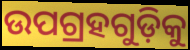
ଉପଗ୍ରହଗୁଡ଼ିକୁ